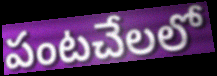
పంటచేలలో